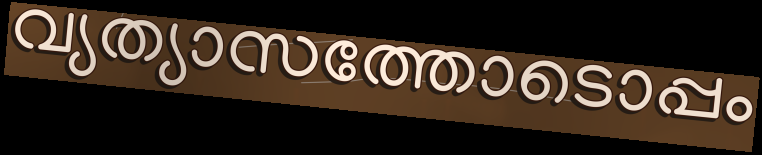
വ്യത്യാസത്തോടൊപ്പം